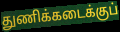
துணிக்கடைக்குப்